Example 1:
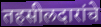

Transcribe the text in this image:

तहसीलदारांचे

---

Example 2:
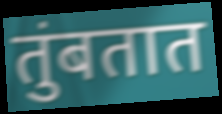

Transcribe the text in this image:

तुंबतात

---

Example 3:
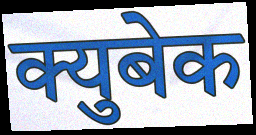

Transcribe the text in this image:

क्युबेक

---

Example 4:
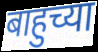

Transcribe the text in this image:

बाहुच्या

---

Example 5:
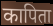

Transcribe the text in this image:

कापिता